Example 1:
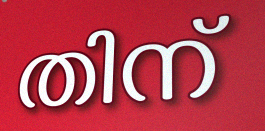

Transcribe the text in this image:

തിന്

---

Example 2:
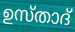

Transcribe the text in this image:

ഉസ്താദ്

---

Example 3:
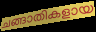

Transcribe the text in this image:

ചങ്ങാതികളായ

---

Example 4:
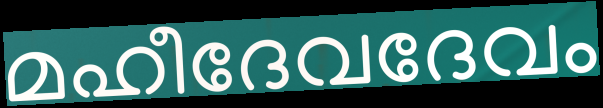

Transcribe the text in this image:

മഹീദേവദേവം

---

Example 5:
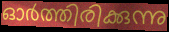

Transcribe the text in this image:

ഓർത്തിരിക്കുന്നു